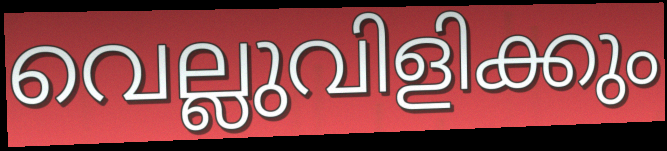
വെല്ലുവിളിക്കും